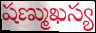
షణ్ముఖస్య